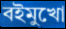
বইমুখো